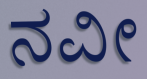
ನವೀ